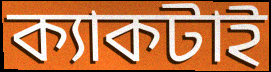
ক্যাকটাই